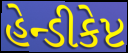
હેન્ડીકેપ્ટ